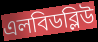
এলবিডব্লিউ